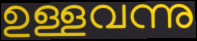
ഉള്ളവന്നു